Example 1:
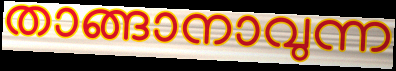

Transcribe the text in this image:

താങ്ങാനാവുന്ന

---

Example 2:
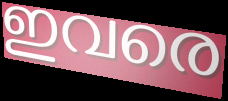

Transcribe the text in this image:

ഇവരെ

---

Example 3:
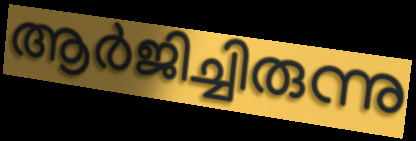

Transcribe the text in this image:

ആർജിച്ചിരുന്നു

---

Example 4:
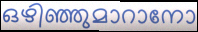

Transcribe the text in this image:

ഒഴിഞ്ഞുമാറാനോ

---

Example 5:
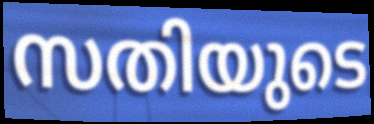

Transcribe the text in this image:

സതിയുടെ